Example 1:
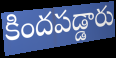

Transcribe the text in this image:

కిందపడ్డారు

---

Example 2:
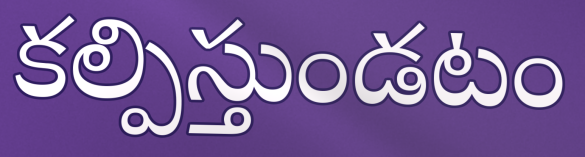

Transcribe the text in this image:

కల్పిస్తుండటం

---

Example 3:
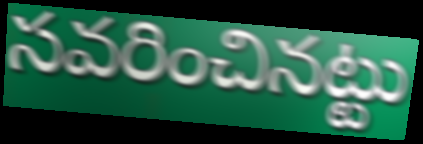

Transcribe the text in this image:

సవరించినట్టు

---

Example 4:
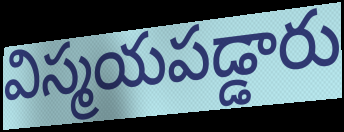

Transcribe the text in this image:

విస్మయపడ్డారు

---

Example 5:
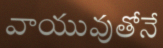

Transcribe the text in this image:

వాయువుతోనే